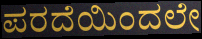
ಪರದೆಯಿಂದಲೇ